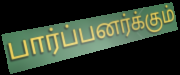
பார்ப்பனர்க்கும்